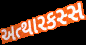
અત્થારકસ્સ